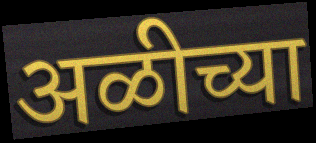
अळीच्या